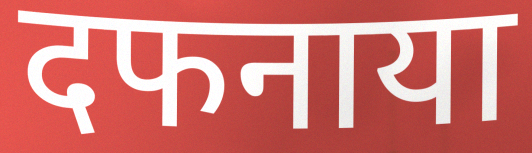
दफनाया